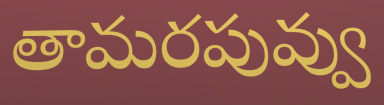
తామరపువ్వు